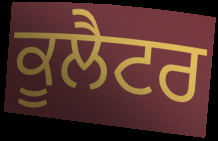
ਕੂਲੈਟਰ